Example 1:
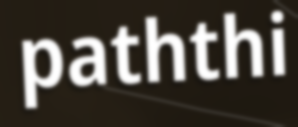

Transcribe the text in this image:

paththi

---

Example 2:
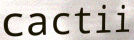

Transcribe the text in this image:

cactii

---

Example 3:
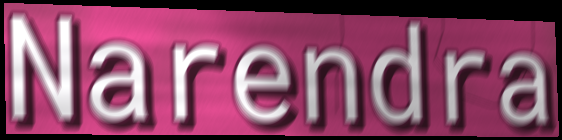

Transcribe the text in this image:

Narendra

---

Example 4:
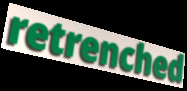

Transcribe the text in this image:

retrenched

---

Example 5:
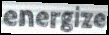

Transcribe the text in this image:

energize